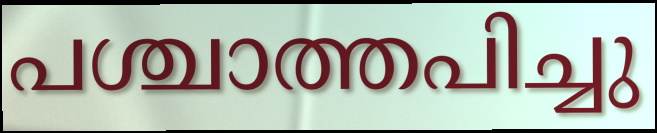
പശ്ചാത്തപിച്ചു